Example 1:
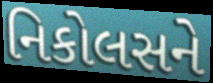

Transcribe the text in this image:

નિકોલસને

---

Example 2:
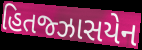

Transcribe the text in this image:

હિતજ્ઝાસયેન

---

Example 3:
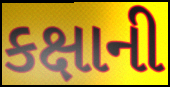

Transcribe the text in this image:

કક્ષાની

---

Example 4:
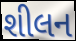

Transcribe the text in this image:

શીલન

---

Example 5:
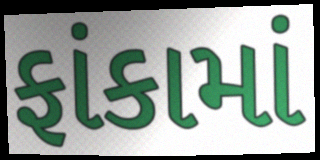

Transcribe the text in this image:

ફાંકામાં